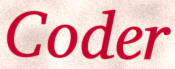
Coder